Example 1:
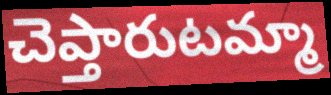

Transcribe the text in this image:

చెప్తారుటమ్మా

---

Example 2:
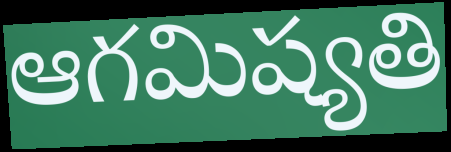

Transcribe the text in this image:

ఆగమిష్యతి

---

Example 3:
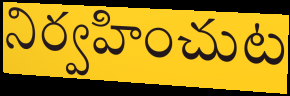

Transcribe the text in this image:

నిర్వహించుట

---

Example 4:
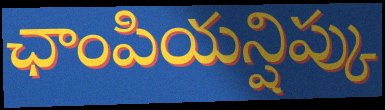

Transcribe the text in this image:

ఛాంపియన్షిప్కు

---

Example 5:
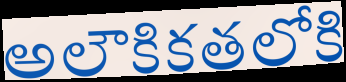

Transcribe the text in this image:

అలౌకికతలోకి